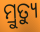
ମ୍ରୁତ୍ୟୁ